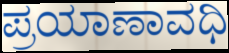
ಪ್ರಯಾಣಾವಧಿ